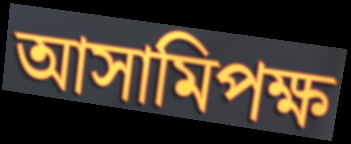
আসামিপক্ষ